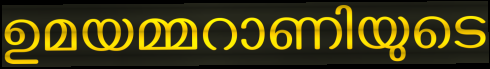
ഉമയമ്മറാണിയുടെ